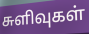
சுளிவுகள்